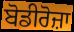
ਬੋਡੀਰੋਜ਼ਾ